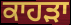
ਕਾਹੜਾ